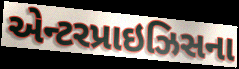
એન્ટરપ્રાઇઝિસના